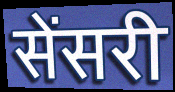
सेंसरी